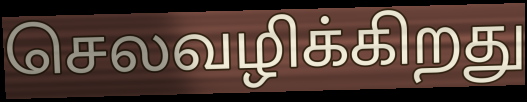
செலவழிக்கிறது